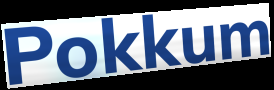
Pokkum